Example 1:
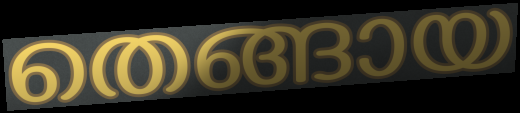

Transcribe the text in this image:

തെങ്ങായ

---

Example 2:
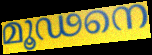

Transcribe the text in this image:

മൂഢനെ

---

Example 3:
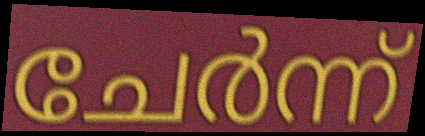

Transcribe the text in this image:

ചേർന്ന്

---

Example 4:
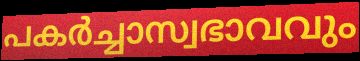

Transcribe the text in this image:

പകർച്ചാസ്വഭാവവും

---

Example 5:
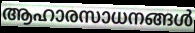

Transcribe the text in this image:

ആഹാരസാധനങ്ങൾ